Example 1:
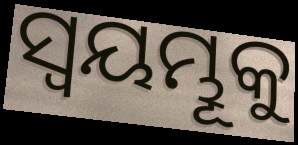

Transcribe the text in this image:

ସ୍ଵୟମ୍ଭୂକୁ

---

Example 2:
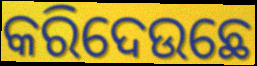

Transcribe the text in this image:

କରିଦେଉଛେ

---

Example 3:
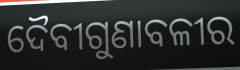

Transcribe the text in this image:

ଦୈବୀଗୁଣାବଳୀର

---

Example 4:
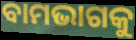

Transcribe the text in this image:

ବାମଭାଗକୁ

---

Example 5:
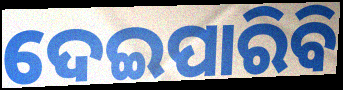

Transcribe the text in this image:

ଦେଇପାରିବି